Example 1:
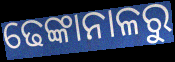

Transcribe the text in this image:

ଢେଙ୍କାନାଳରୁ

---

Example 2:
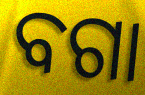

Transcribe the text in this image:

ବଗା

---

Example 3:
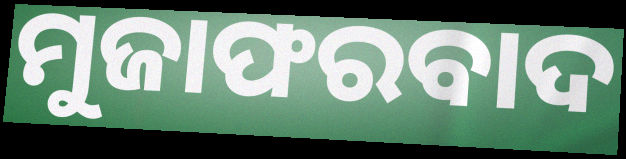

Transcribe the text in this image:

ମୁଜାଫରବାଦ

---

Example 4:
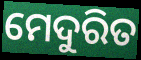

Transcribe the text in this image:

ମେଦୁରିତ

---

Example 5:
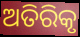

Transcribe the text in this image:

ଅତିରିକୃ